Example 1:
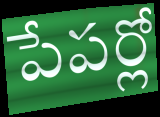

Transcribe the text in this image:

పేపర్లో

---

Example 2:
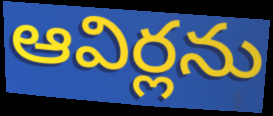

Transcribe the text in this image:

ఆవిర్లను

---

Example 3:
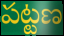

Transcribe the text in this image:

పట్టణ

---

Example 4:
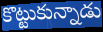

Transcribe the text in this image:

కొట్టుకున్నాడు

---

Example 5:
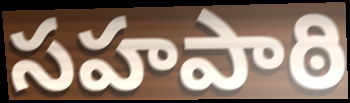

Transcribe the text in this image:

సహపాఠి